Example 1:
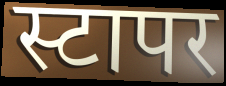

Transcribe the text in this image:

स्टापर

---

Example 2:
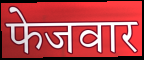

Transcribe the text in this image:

फेजवार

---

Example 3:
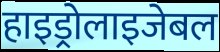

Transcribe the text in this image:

हाइड्रोलाइजेबल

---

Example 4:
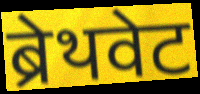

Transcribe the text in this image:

ब्रेथवेट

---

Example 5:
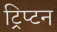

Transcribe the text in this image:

ट्रिप्टन